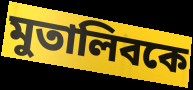
মুতালিবকে